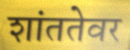
शांततेवर